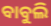
ବାବୁଲି